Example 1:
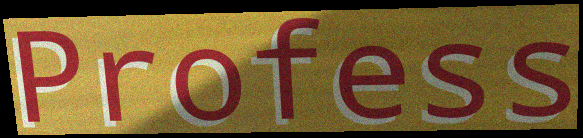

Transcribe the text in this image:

Profess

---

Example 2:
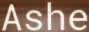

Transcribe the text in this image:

Ashe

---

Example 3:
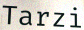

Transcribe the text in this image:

Tarzi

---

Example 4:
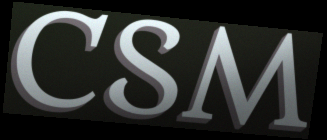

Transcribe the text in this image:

CSM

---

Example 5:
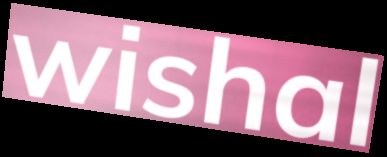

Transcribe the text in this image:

wishal